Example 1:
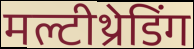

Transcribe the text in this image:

मल्टीथ्रेडिंग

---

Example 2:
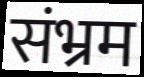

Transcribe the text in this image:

संभ्रम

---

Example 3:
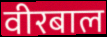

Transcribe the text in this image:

वीरबाल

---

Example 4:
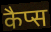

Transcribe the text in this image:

कैप्स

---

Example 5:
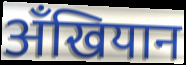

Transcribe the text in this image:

अँखियान